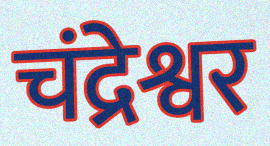
चंद्रेश्वर